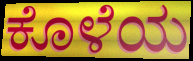
ಕೊಳೆಯ